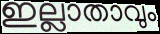
ഇല്ലാതാവും